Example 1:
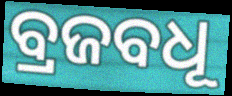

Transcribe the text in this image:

ବ୍ରଜବଧୂ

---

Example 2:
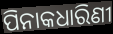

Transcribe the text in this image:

ପିନାକଧାରିଣୀ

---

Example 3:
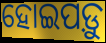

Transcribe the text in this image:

ହୋଇପଡ଼ୁ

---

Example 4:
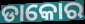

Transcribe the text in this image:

ଡାକୋର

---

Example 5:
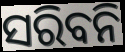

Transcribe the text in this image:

ସରିବନି